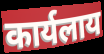
कार्यलाय